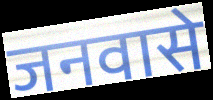
जनवासे